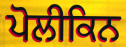
ਪੋਲੀਕਿਨ